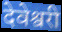
देवेश्वरी